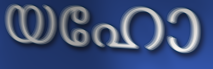
യഹോ